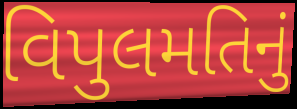
વિપુલમતિનું